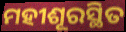
ମହୀଶୂରସ୍ଥିତ